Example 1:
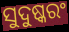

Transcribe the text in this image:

ସୁଦୁଷ୍କରଂ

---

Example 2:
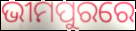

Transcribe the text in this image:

ଭୀମପୁରରେ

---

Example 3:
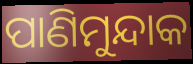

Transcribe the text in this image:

ପାଣିମୁନ୍ଦାକ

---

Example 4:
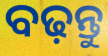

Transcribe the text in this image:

ବଢ଼ନ୍ତୁ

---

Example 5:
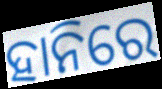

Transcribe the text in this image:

ହାନିରେ